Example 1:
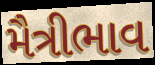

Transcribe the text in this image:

મૈત્રીભાવ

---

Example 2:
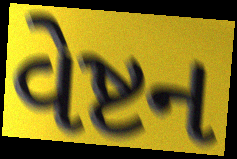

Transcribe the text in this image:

વેષ્ટન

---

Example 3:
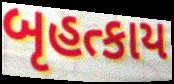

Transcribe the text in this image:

બૃહત્કાય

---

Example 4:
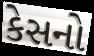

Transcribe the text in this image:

કેસનો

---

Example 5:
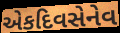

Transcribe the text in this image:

એકદિવસેનેવ